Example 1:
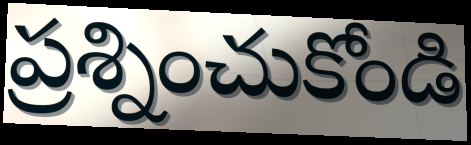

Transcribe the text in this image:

ప్రశ్నించుకోండి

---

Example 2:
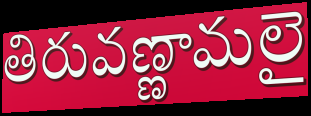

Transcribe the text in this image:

తిరువణ్ణామలై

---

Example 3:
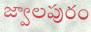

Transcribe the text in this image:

జ్వాలపురం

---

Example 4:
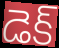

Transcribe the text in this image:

డెక్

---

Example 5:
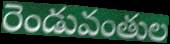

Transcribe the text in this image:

రెండువంతుల